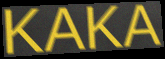
KAKA